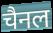
चैनल